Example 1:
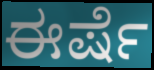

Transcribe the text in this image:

ಈರ್ಷೆ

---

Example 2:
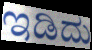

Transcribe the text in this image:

ಇಡಿದು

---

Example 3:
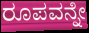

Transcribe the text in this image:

ರೂಪವನ್ನೇ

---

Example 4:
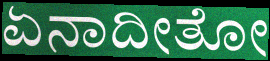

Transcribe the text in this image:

ಏನಾದೀತೋ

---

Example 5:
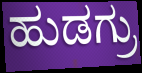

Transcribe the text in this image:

ಹುಡಗ್ರು